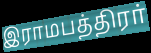
இராமபத்திரர்